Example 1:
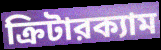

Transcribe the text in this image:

ক্রিটারক্যাম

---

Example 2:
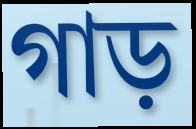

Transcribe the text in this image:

গাড়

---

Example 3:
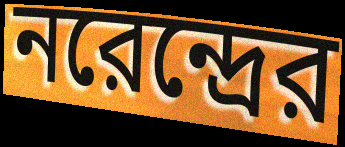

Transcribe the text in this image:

নরেন্দ্রের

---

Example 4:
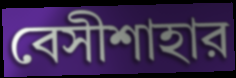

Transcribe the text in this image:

বেসীশাহার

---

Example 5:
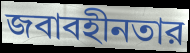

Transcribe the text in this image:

জবাবহীনতার